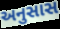
અનુસાસ